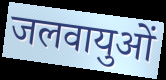
जलवायुओं